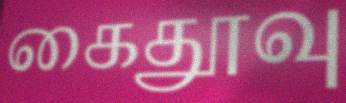
கைதூவு